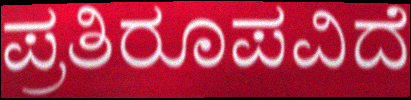
ಪ್ರತಿರೂಪವಿದೆ